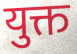
युक्त